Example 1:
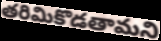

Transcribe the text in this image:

తరిమికొడతామని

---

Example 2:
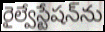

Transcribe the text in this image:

రైల్వేస్టేషన్‌ను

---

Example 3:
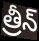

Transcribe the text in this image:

త్రీన్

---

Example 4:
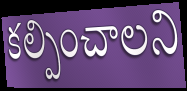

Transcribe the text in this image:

కల్పించాలని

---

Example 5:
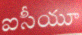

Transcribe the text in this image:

ఐసీయూ